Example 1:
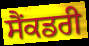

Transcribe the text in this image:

ਸੈਂਕਡਰੀ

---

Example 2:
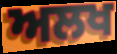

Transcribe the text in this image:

ਅਲਖ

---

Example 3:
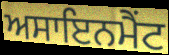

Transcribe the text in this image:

ਅਸਾਇਨਮੈਂਟ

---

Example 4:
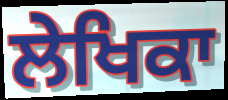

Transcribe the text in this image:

ਲੇਖਿਕਾ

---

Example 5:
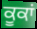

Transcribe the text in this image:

ਕੂਕਾਂ